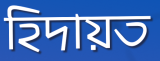
হিদায়ত